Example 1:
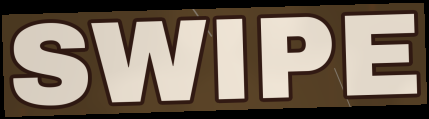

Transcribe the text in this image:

SWIPE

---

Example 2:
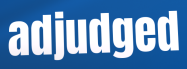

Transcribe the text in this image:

adjudged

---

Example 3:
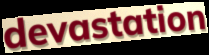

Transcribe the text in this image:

devastation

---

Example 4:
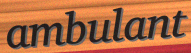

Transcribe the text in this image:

ambulant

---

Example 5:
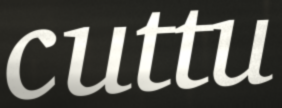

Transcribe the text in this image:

cuttu